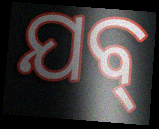
ଯବ୍